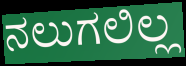
ನಲುಗಲಿಲ್ಲ